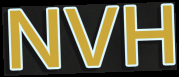
NVH